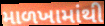
માળખામાંથી